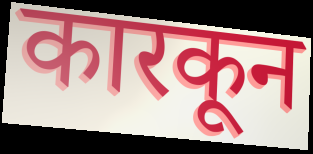
कारकून